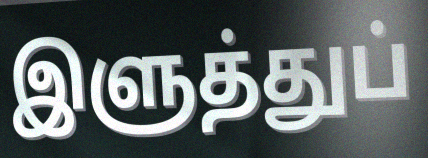
இளுத்துப்